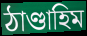
ঠাণ্ডাহিম